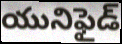
యునిఫైడ్